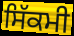
ਸਿੱਕਮੀ